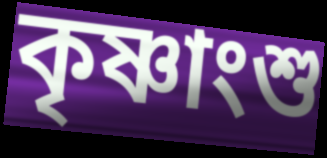
কৃষ্ণাংশু